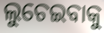
ଲୁଚେଇବାକୁ